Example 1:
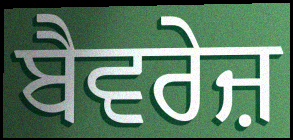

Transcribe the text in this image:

ਬੈਵਰੇਜ਼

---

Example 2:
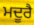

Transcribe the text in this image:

ਮਦੂਰੈ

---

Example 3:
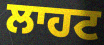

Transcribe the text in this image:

ਲਾਹਟ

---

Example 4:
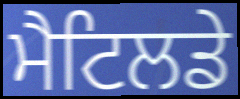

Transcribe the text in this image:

ਮੈਟਿਲਡੇ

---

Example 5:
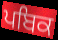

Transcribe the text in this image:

ਪਬਿਕ